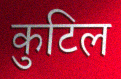
कुटिल